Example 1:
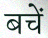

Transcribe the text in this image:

बचें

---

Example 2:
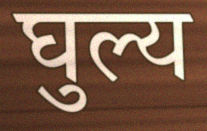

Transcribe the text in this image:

घुल्य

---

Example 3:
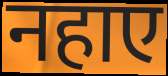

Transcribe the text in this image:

नहाए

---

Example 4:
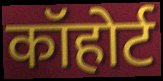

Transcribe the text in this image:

कॉहोर्ट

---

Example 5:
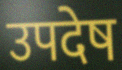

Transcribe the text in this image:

उपदेष